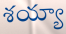
శయ్యా